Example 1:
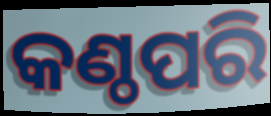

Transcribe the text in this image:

କଣ୍ଠପରି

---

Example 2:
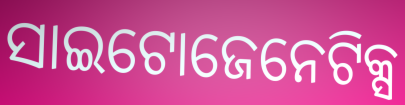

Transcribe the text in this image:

ସାଇଟୋଜେନେଟିକ୍ସ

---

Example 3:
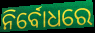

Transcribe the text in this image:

ନିର୍ବୋଧରେ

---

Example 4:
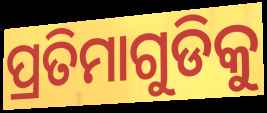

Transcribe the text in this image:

ପ୍ରତିମାଗୁଡିକୁ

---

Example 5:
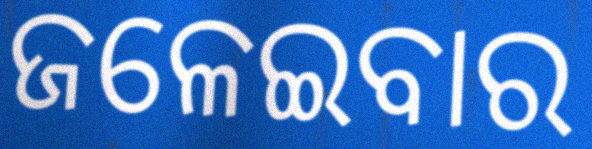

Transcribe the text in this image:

ଜଳେଇବାର